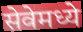
सेवेमध्ये